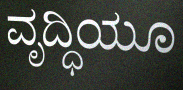
ವೃದ್ಧಿಯೂ